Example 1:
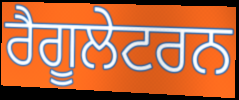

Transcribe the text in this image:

ਰੈਗੂਲੇਟਰਨ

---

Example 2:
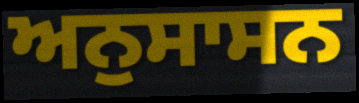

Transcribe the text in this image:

ਅਨੁਸਾਸਨ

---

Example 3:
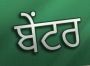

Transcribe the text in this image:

ਬੇਂਟਰ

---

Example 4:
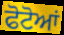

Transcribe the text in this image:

ਫੋਟੋਆਂ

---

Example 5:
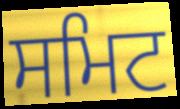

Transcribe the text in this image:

ਸਮਿਟ